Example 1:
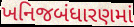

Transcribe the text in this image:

ખનિજબંધારણમાં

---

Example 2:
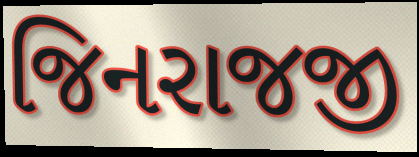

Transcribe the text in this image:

જિનરાજજી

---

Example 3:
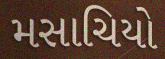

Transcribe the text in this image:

મસાચિયો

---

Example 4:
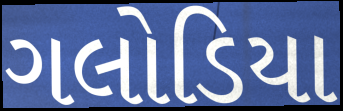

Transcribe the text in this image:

ગલોડિયા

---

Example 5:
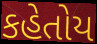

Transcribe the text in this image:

કહેતોય